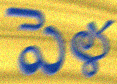
పెళ